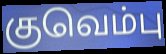
குவெம்பு